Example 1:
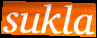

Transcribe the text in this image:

sukla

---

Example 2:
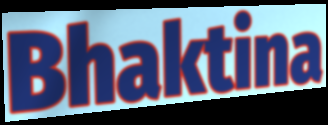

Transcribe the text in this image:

Bhaktina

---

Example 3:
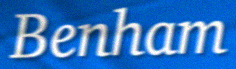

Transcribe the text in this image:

Benham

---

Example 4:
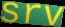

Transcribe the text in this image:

srv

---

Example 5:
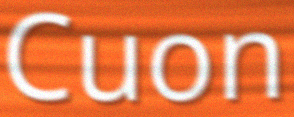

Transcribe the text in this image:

Cuon